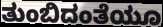
ತುಂಬಿದಂತೆಯೂ